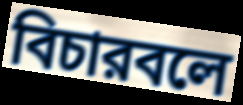
বিচারবলে